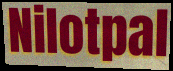
Nilotpal